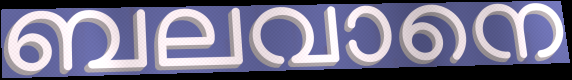
ബലവാനെ